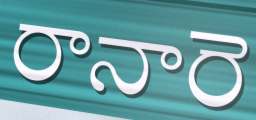
రానారె